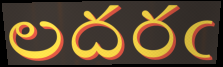
లదరఁ